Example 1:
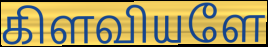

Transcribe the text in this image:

கிளவியளே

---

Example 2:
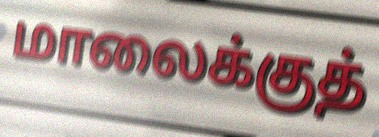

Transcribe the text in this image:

மாலைக்குத்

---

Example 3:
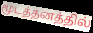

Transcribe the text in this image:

மூடத்தனத்தில்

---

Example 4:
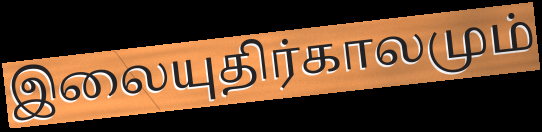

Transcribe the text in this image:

இலையுதிர்காலமும்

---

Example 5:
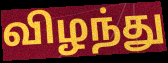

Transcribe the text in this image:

விழந்து